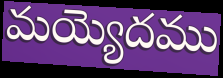
మయ్యెదము